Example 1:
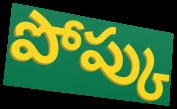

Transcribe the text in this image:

పోప్కు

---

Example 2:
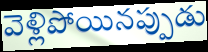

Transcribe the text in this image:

వెళ్లిపోయినప్పుడు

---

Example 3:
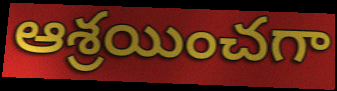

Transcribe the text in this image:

ఆశ్రయించగా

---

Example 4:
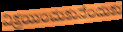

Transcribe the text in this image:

విక్రయించుకునేందుకు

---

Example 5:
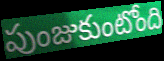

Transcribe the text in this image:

పుంజుకుంటోంది